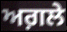
ਅਗ਼ਲੇ